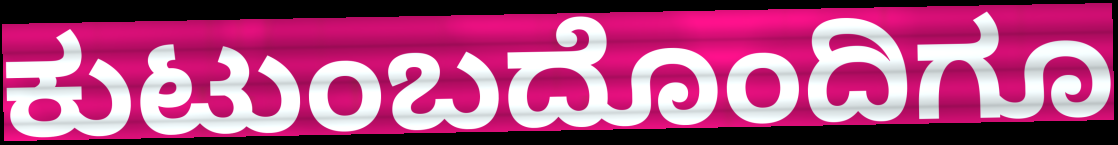
ಕುಟುಂಬದೊಂದಿಗೂ